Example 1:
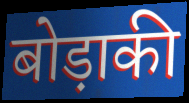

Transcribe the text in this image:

बोड़ाकी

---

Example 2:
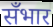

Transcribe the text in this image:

सँभार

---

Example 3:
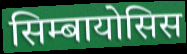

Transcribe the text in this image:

सिम्बायोसिस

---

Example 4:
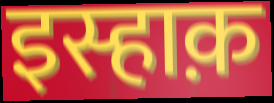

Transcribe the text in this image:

इस्हाक़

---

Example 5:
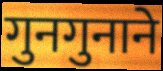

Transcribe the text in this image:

गुनगुनाने